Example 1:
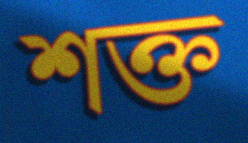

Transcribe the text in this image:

শক্ত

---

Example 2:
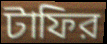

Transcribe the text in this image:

টাফির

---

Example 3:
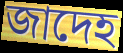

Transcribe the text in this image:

জাদেহ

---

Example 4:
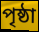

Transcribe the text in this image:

পৃষ্ঠা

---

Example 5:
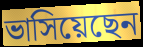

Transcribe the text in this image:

ভাসিয়েছেন